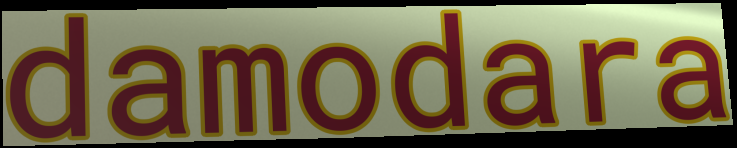
damodara